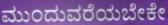
ಮುಂದುವರೆಯಬೇಕೇ